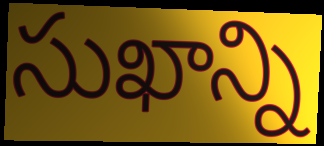
సుఖాన్ని